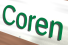
Coren